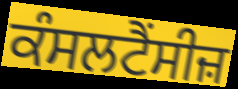
ਕੰਸਲਟੈਂਸੀਜ਼